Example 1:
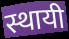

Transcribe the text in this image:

स्थायी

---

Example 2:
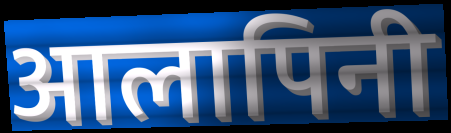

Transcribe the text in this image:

आलापिनी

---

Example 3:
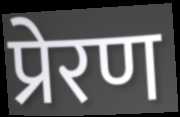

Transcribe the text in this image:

प्रेरण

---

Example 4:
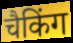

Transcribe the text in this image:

चैकिंग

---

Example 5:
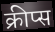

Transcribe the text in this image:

क्रीप्स